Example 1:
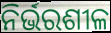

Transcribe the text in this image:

ନିର୍ଭରଶୀଳ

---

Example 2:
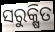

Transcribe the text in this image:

ସରୁକ୍ଷିତ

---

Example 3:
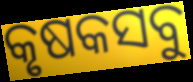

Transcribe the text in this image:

କୃଷକସବୁ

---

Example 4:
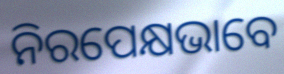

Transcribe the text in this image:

ନିରପେକ୍ଷଭାବେ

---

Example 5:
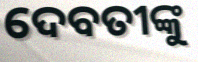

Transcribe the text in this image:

ଦେବତୀଙ୍କୁ